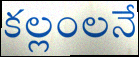
కల్లంలనే